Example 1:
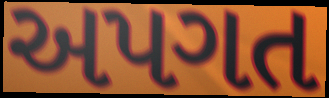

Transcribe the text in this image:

અપગત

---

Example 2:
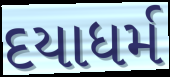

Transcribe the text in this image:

દયાધર્મ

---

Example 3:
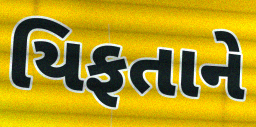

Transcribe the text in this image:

યિફતાને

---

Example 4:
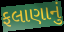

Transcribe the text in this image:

ફલાણાનું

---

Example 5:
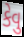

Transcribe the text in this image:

કેવુ